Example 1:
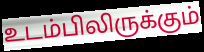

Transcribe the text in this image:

உடம்பிலிருக்கும்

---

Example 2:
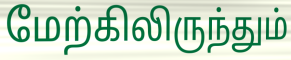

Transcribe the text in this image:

மேற்கிலிருந்தும்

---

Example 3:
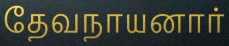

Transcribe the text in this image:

தேவநாயனார்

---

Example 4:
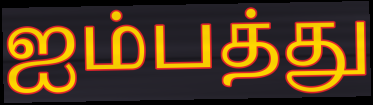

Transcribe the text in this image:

ஐம்பத்து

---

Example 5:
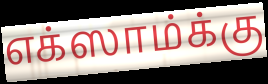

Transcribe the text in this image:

எக்ஸாம்க்கு